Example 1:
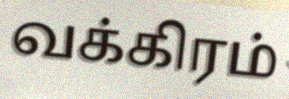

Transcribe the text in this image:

வக்கிரம்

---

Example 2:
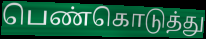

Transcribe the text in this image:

பெண்கொடுத்து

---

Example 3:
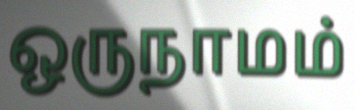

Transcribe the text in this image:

ஒருநாமம்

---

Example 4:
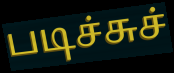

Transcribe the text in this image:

படிச்சுச்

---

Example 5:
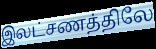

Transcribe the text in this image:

இலட்சணத்திலே